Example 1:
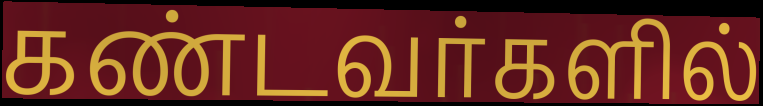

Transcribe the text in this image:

கண்டவர்களில்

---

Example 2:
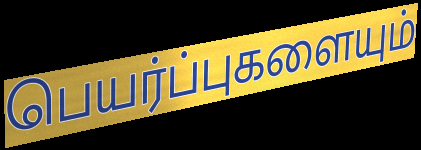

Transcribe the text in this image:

பெயர்ப்புகளையும்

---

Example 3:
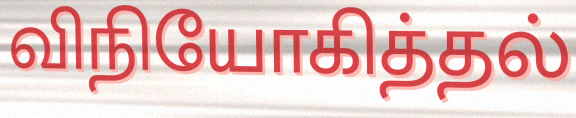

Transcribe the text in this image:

விநியோகித்தல்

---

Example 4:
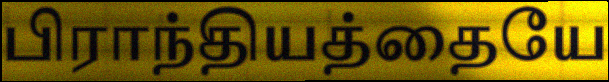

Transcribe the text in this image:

பிராந்தியத்தையே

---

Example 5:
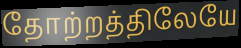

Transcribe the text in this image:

தோற்றத்திலேயே